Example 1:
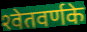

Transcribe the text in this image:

श्वेतवर्णके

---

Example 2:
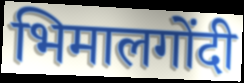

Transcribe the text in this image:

भिमालगोंदी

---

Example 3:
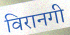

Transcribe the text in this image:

विरानगी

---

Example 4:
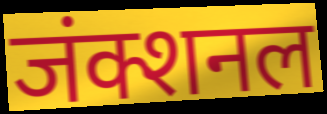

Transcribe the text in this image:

जंक्शनल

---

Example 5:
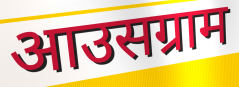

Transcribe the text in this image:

आउसग्राम